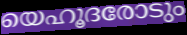
യെഹൂദരോടും